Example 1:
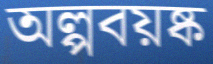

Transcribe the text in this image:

অল্পবয়ষ্ক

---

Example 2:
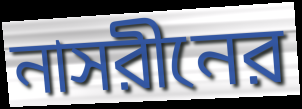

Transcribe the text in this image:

নাসরীনের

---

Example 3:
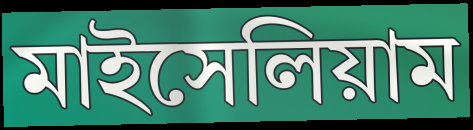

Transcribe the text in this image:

মাইসেলিয়াম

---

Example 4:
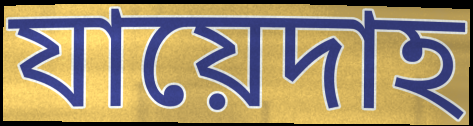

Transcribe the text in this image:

যায়েদাহ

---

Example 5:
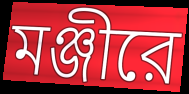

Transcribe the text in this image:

মঞ্জীরে